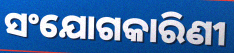
ସଂଯୋଗକାରିଣୀ